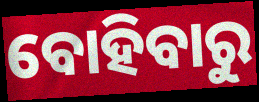
ବୋହିବାରୁ